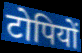
टोपियों